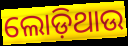
ଲୋଡ଼ିଥାଉ